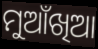
ମୁଆଁଖିଆ